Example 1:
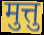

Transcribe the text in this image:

मुत्तु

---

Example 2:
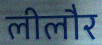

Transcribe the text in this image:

लीलौर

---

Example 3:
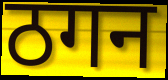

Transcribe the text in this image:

ठगन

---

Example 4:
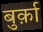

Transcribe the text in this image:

बुर्क़ा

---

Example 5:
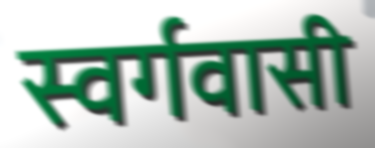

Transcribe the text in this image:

स्वर्गवासी